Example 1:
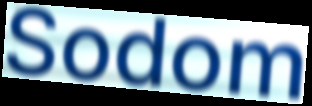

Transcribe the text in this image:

Sodom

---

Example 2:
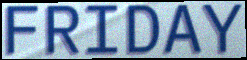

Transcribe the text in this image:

FRIDAY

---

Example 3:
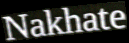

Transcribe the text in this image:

Nakhate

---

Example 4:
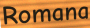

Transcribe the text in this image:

Romana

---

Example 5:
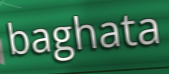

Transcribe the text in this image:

baghata